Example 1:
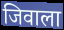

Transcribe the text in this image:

जिवाला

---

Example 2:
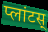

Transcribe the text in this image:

प्लांटस्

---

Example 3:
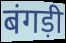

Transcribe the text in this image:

बंगड़ी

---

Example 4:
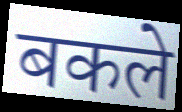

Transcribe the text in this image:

बकले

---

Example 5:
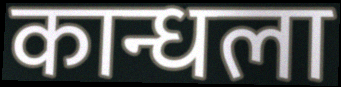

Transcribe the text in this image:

कान्धला